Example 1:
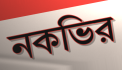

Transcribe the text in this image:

নকভির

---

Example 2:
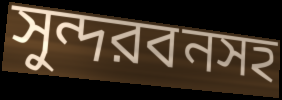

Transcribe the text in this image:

সুন্দরবনসহ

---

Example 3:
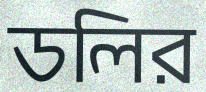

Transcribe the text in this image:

ডলির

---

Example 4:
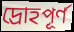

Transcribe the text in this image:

দ্রোহপূর্ণ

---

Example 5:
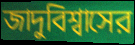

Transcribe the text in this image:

জাদুবিশ্বাসের